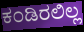
ಕಂಡಿರಲಿಲ್ಲ